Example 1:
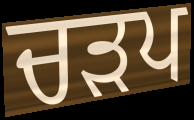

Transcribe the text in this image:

ਚੜਪ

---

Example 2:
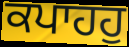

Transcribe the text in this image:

ਕਪਾਹਹੁ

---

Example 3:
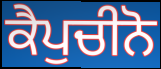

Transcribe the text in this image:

ਕੈਪੁਚੀਨੋ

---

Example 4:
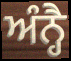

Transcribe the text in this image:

ਅੰਨ੍ਹੈ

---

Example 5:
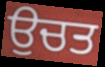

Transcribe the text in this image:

ਉਚਤ